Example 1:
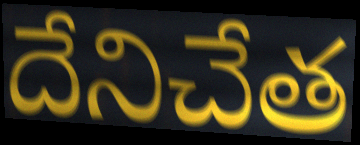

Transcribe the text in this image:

దేనిచేత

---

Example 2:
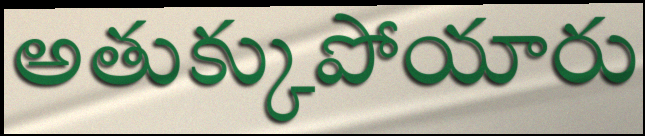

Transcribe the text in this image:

అతుక్కుపోయారు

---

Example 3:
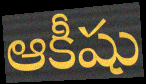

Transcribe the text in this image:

ఆకీషు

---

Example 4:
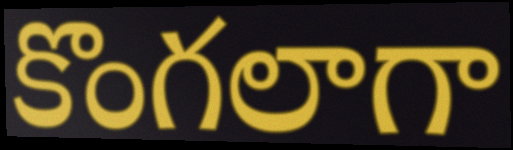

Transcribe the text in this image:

కొంగలాగా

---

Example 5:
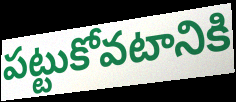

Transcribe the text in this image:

పట్టుకోవటానికి